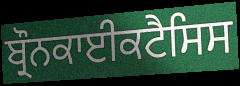
ਬ੍ਰੌਨਕਾਈਕਟੈਸਿਸ